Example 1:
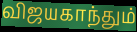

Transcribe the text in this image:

விஜயகாந்தும்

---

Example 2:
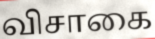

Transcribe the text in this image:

விசாகை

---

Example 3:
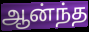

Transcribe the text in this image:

ஆன்ந்த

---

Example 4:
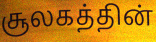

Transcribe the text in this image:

சூலகத்தின்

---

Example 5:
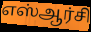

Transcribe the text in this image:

எஸ்ஆர்சி